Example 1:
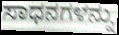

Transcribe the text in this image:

ಸಾಧನಗಳನ್ನು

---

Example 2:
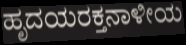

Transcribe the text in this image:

ಹೃದಯರಕ್ತನಾಳೀಯ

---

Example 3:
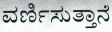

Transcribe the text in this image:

ವರ್ಣಿಸುತ್ತಾನೆ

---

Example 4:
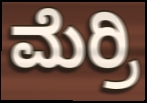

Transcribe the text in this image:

ಮೆರ್ರಿ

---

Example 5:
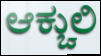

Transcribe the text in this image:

ಆಕ್ಚುಲಿ